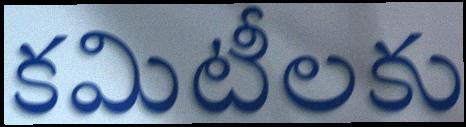
కమిటీలకు